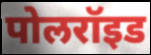
पोलरॉइड